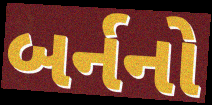
બર્નનો